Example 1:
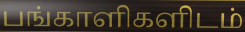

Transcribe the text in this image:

பங்காளிகளிடம்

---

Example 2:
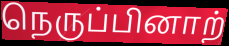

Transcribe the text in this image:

நெருப்பினாற்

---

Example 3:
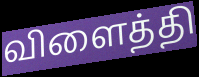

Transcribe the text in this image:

விளைத்தி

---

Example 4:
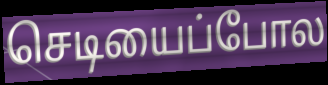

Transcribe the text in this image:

செடியைப்போல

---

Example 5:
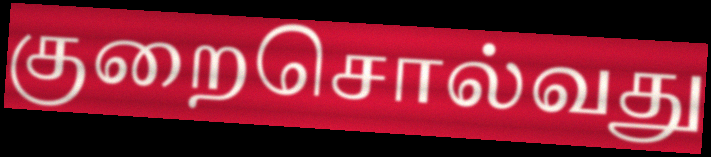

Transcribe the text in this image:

குறைசொல்வது